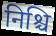
निश्चि